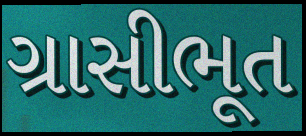
ગ્રાસીભૂત